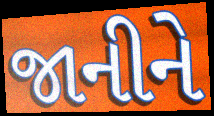
જાનીને